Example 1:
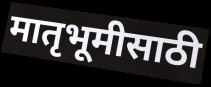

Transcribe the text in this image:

मातृभूमीसाठी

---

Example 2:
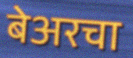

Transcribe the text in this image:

बेअरचा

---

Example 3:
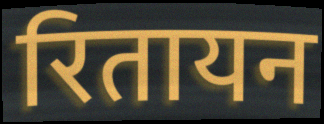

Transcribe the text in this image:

रितायन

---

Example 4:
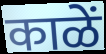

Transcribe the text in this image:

काळें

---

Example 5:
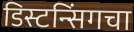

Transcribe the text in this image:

डिस्टन्सिंगचा